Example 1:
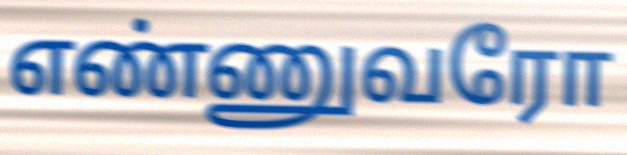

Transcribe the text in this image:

எண்ணுவரோ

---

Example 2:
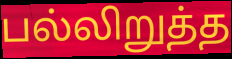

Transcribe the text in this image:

பல்லிறுத்த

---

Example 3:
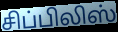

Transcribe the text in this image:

சிப்பிலிஸ்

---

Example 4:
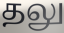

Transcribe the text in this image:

தலு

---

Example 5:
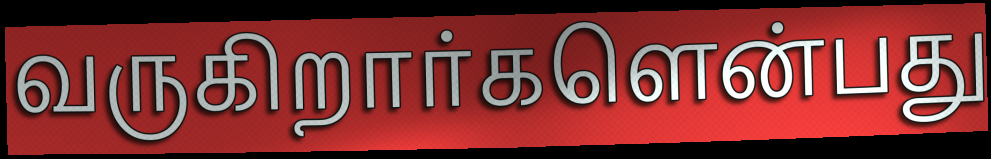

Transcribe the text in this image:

வருகிறார்களென்பது